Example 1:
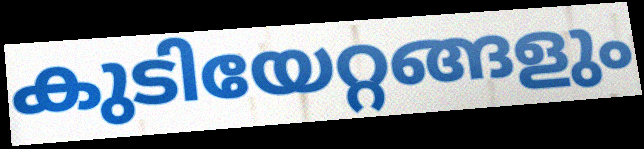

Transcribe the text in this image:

കുടിയേറ്റങ്ങളും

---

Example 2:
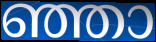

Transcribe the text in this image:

ഞ്ഞാ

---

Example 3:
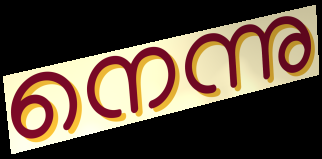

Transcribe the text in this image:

നെന്നു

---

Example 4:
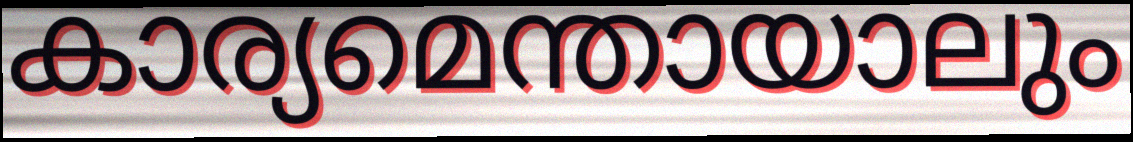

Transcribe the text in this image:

കാര്യമെന്തായാലും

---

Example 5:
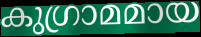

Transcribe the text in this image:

കുഗ്രാമമായ